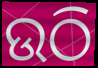
ଉଠି